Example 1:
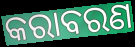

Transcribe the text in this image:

କରାବରଣ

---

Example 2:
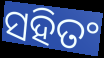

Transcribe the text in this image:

ସହିତଂ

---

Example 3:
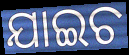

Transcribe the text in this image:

ଯାଇଚ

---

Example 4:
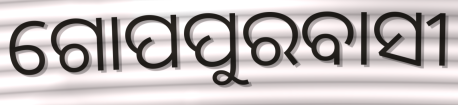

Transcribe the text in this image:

ଗୋପପୁରବାସୀ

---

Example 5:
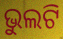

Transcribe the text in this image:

ଭୁଲଟି